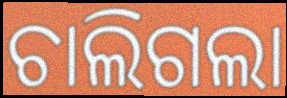
ଚାଲିଗଲା